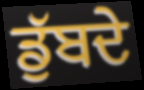
ਡੁੱਬਦੇ